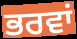
ਭਰਵਾਂ